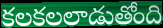
కలకలలాడుతోంది